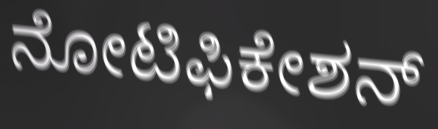
ನೋಟಿಫಿಕೇಶನ್